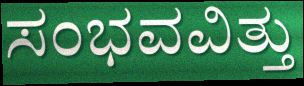
ಸಂಭವವಿತ್ತು